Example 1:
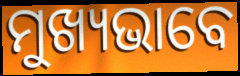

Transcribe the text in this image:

ମୁଖ୍ୟଭାବେ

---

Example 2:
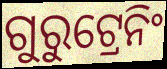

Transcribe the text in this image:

ଗୁରୁଟ୍ରେନିଂ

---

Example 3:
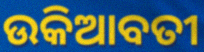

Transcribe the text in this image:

ଉକିଆବତୀ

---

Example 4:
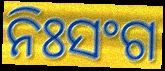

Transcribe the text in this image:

ନିଃସଂଗ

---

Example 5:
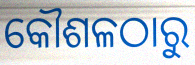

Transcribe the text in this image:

କୌଶଳଠାରୁ